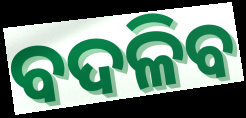
ବଦଳିବ